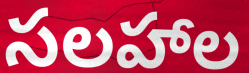
సలహాల